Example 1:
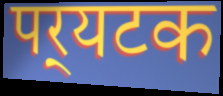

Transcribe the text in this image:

पर्यटक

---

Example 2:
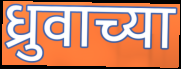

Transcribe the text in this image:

ध्रुवाच्या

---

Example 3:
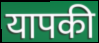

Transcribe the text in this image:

यापकी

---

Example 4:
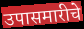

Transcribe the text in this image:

उपासमारीचे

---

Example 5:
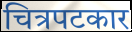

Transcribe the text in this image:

चित्रपटकार